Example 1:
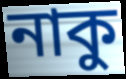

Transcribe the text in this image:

নাকু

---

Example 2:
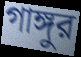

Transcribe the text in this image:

গাঙ্গুর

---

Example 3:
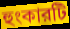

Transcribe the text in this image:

হুংকারটি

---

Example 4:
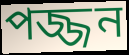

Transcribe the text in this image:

পজ্জন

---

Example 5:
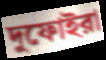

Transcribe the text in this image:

দুফোইরা